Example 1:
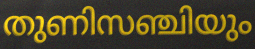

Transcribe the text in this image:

തുണിസഞ്ചിയും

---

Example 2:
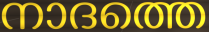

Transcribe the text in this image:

നാദത്തെ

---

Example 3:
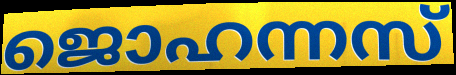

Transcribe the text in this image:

ജൊഹന്നസ്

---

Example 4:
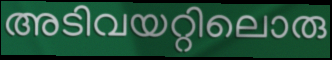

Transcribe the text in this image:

അടിവയറ്റിലൊരു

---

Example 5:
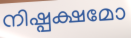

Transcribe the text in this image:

നിഷ്പക്ഷമോ